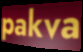
pakva